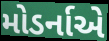
મોડર્નાએ